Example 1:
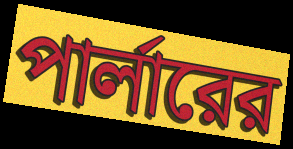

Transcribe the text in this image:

পার্লারের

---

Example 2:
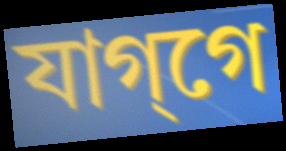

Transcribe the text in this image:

যাগ্‌গে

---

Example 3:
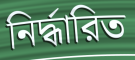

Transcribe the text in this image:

নির্দ্ধারিত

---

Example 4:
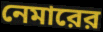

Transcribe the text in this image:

নেমারের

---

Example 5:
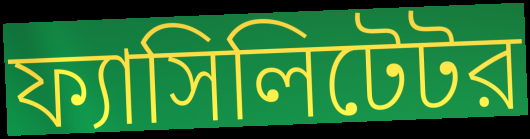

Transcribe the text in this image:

ফ্যাসিলিটেটর